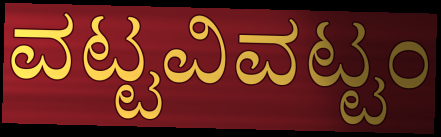
ವಟ್ಟವಿವಟ್ಟಂ